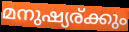
മനുഷ്യര്ക്കും